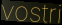
vostri